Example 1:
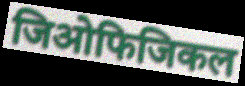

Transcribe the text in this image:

जिओफिजिकल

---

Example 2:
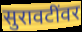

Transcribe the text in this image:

सुरावटींवर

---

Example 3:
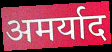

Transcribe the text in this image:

अमर्याद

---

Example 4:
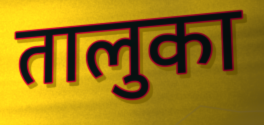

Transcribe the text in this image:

तालुका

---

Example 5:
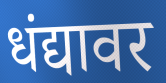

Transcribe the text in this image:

धंद्यावर